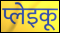
प्लेइकू